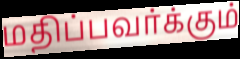
மதிப்பவர்க்கும்